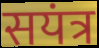
सयंत्र